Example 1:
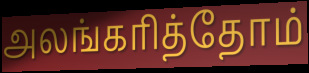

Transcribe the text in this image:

அலங்கரித்தோம்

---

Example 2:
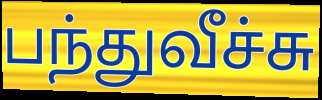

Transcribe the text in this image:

பந்துவீச்சு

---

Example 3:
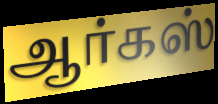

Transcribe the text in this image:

ஆர்கஸ்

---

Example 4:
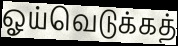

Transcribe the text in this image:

ஓய்வெடுக்கத்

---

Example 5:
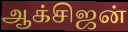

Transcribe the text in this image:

ஆக்சிஜன்